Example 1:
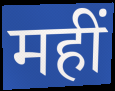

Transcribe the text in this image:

महीं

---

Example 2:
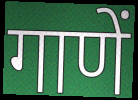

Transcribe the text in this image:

गाणें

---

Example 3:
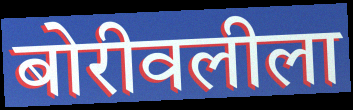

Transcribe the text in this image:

बोरीवलीला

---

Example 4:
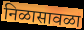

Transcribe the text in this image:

निळासावळा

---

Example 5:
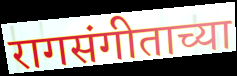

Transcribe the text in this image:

रागसंगीताच्या